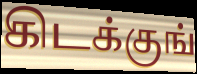
கிடக்குங்